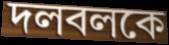
দলবলকে